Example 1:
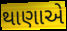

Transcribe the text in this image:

થાણાએ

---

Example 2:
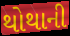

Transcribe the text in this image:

થોથાની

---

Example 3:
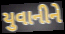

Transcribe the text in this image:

યુવાનીને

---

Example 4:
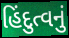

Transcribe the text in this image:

હિંદુત્વનું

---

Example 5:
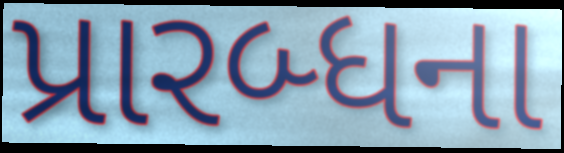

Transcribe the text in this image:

પ્રારબ્ધના